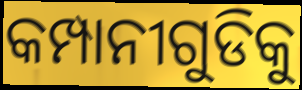
କମ୍ପାନୀଗୁଡିକୁ